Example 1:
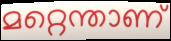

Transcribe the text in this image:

മറ്റെന്താണ്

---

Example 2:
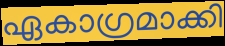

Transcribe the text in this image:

ഏകാഗ്രമാക്കി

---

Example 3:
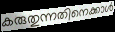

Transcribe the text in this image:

കരുതുന്നതിനെക്കാൾ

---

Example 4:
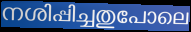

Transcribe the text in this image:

നശിപ്പിച്ചതുപോലെ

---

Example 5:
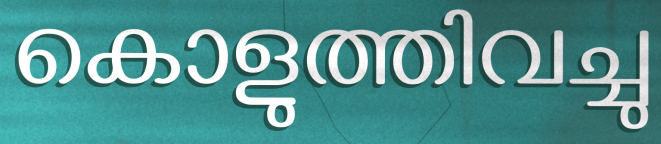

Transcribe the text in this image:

കൊളുത്തിവച്ചു